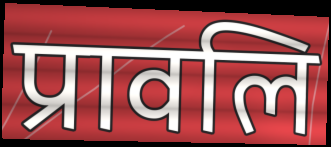
प्रावलि